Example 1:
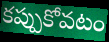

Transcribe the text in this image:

కప్పుకోవటం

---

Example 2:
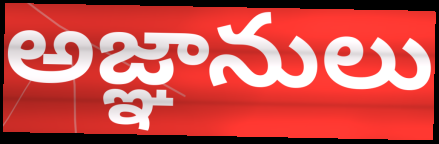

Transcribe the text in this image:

అజ్ఞానులు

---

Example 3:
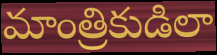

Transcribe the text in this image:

మాంత్రికుడిలా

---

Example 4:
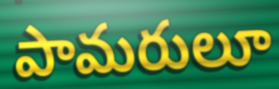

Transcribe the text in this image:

పామరులూ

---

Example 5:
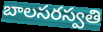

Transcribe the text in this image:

బాలసరస్వతి